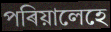
পৰিয়ালেহে